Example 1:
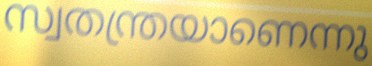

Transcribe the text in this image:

സ്വതന്ത്രയാണെന്നു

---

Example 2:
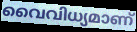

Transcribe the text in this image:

വൈവിധ്യമാണ്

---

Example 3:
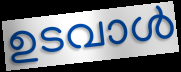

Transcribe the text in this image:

ഉടവാൾ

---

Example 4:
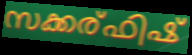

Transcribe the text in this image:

സക്കര്ഫിഷ്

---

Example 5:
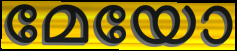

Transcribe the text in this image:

മേയോ